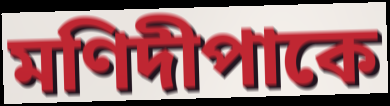
মণিদীপাকে